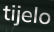
tijelo